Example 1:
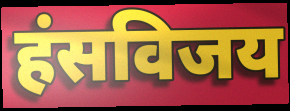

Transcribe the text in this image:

हंसविजय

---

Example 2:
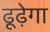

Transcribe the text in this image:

ढूढ़ेगा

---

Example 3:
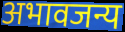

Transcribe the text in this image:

अभावजन्य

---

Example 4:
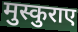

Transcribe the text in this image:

मुस्कुराए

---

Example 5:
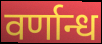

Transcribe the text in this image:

वर्णान्ध